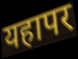
यहापर